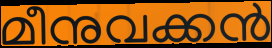
മീനുവക്കൻ